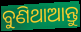
ବୁଣିଥାଆନ୍ତୁ